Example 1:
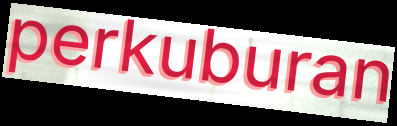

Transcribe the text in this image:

perkuburan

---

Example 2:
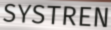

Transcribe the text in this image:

SYSTREN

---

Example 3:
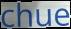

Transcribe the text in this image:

chue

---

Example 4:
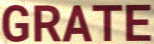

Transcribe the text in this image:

GRATE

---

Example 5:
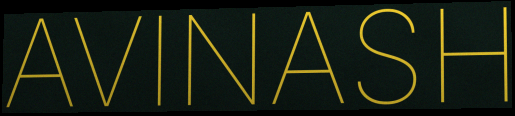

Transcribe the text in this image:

AVINASH